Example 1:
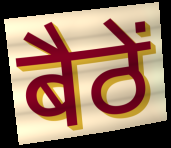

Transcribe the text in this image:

बैठें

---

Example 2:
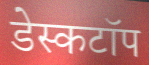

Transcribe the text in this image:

डेस्कटॉप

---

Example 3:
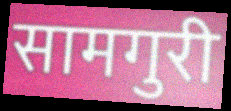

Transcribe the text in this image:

सामगुरी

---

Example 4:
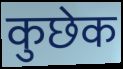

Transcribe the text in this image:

कुछेक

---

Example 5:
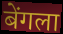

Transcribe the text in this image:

बेंगला